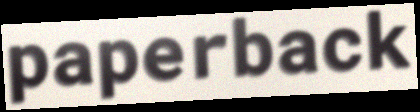
paperback